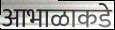
आभाळाकडे